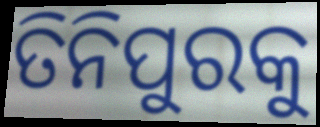
ତିନିପୁରକୁ